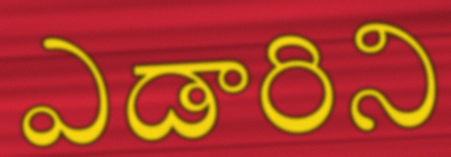
ఎడారిని